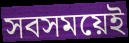
সবসময়েই